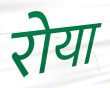
रोया